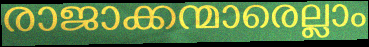
രാജാക്കന്മാരെല്ലാം